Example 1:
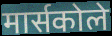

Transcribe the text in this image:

मार्सकोले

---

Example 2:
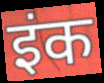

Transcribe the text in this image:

इंक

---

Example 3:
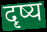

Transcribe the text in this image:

दृष्य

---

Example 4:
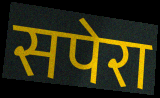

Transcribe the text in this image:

सपेरा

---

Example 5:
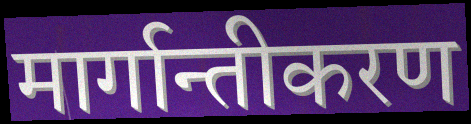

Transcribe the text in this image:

मार्गान्तीकरण